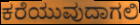
ಕರೆಯುವುದಾಗಲಿ